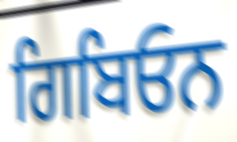
ਗਿਬਿਓਨ